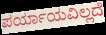
ಪರ್ಯಾಯವಿಲ್ಲದೆ